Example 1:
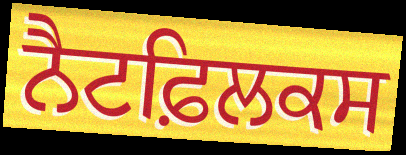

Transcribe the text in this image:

ਨੈਟਫ਼ਿਲਕਸ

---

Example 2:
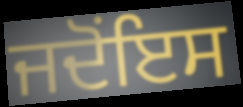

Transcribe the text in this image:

ਜਦੋਂਇਸ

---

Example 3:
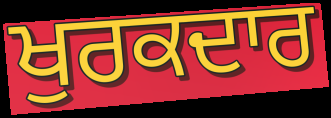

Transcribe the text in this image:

ਖੁਰਕਦਾਰ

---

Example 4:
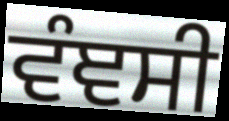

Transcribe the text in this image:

ਵੰਞਸੀ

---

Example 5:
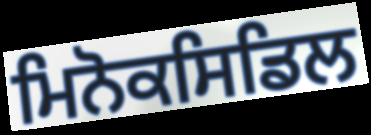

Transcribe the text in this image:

ਮਿਨੋਕਸਿਡਿਲ